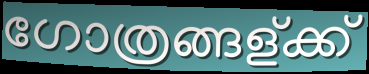
ഗോത്രങ്ങള്ക്ക്